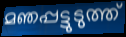
മഞപ്പട്ടുടുത്ത്